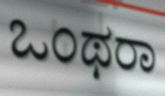
ಒಂಥರಾ